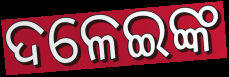
ଦଳେଇଙ୍କ